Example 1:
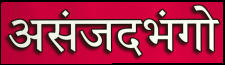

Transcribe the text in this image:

असंजदभंगो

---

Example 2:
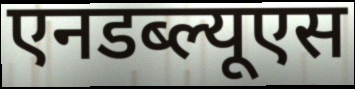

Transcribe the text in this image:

एनडब्ल्यूएस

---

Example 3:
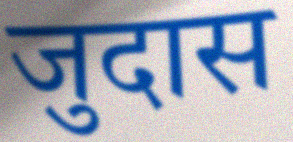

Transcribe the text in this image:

जुदास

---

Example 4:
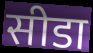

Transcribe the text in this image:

सीडा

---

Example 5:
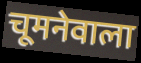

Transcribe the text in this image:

चूमनेवाला